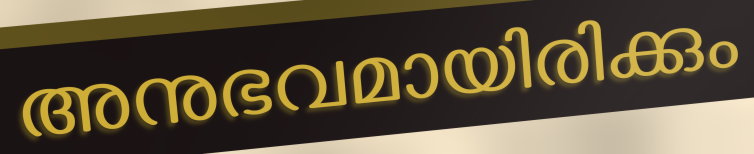
അനുഭവമായിരിക്കും